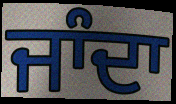
ਜਾੰਦਾ